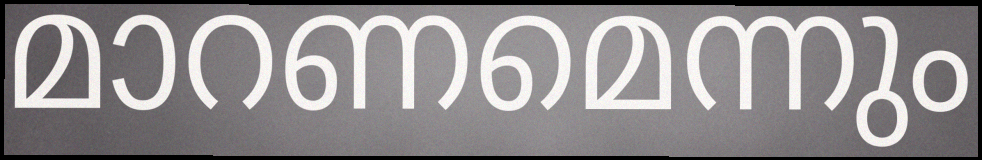
മാറണമെന്നും